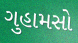
ગુહામસો